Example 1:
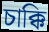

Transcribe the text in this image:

চাক্কি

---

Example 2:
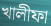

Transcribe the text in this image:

খালীফা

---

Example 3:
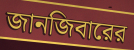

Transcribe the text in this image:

জানজিবারের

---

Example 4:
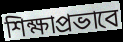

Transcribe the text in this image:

শিক্ষাপ্রভাবে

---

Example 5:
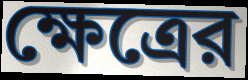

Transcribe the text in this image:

ক্ষেত্রের